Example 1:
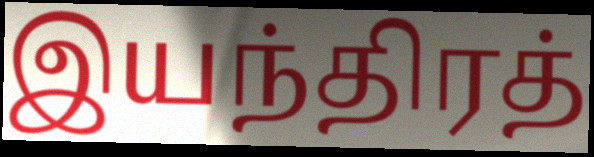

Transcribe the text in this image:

இயந்திரத்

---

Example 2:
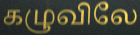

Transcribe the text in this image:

கழுவிலே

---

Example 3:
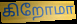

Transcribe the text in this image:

கிறோமா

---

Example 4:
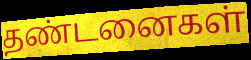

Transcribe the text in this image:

தண்டனைகள்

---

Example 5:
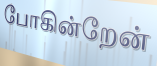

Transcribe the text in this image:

போகின்றேன்